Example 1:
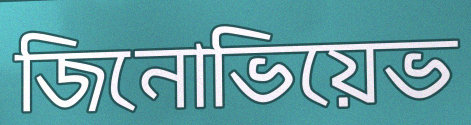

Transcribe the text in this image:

জিনোভিয়েভ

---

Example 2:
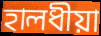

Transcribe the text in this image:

হালধীয়া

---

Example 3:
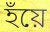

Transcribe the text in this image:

হঁয়ে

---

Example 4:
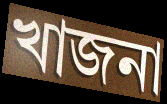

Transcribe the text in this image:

খাজনা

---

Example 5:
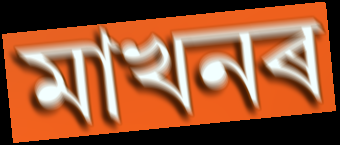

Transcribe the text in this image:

মাখনৰ